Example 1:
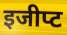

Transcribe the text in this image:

इजीप्ट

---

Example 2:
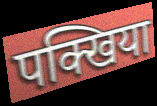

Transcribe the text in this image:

पक्खिया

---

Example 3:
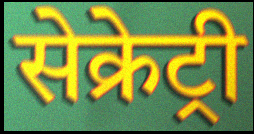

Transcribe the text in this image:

सेक्रेट्री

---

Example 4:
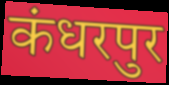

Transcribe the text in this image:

कंधरपुर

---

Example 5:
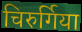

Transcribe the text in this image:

चिरुर्गिया